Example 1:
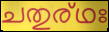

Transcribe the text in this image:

ചതുര്ഥഃ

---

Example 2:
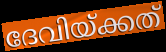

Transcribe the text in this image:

ദേവിയ്ക്കത്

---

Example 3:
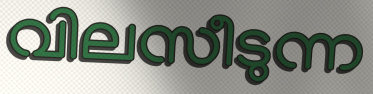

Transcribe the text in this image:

വിലസീടുന്ന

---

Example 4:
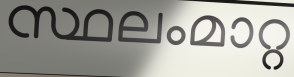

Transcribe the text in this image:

സ്ഥലംമാറ്റ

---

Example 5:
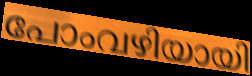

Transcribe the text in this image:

പോംവഴിയായി